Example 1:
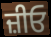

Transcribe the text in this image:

ਜ਼ੀਓ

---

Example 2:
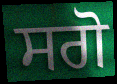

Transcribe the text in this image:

ਸਗੋ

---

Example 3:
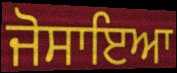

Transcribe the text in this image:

ਜੋਸਾਇਆ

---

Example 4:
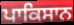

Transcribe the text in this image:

ਪਾਕਿਸਾਨ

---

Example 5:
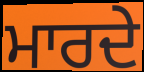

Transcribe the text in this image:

ਮਾਰਦੇ